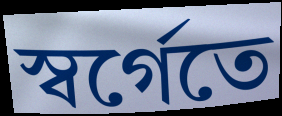
স্বর্গেতে